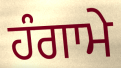
ਹੰਗਾਮੇ